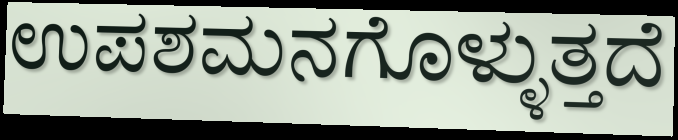
ಉಪಶಮನಗೊಳ್ಳುತ್ತದೆ